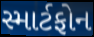
સ્માર્ટફોન